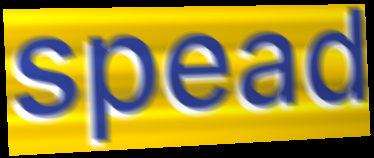
spead